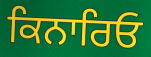
ਕਿਨਾਰਿਓ